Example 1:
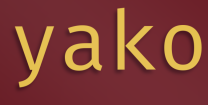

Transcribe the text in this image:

yako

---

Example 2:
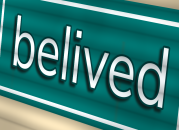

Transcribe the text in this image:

belived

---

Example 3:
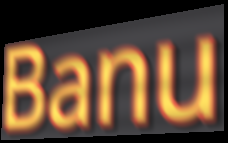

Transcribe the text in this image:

Banu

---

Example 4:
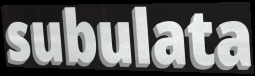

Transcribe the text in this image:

subulata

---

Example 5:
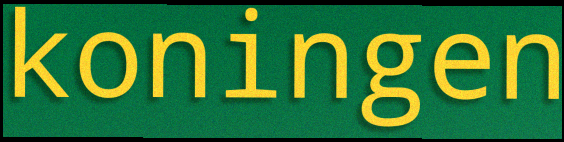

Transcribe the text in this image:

koningen